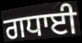
ਗਧਾਈ